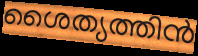
ശൈത്യത്തിൻ